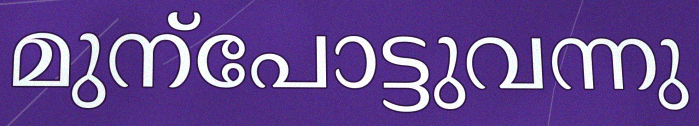
മുന്പോട്ടുവന്നു